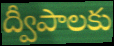
ద్వీపాలకు